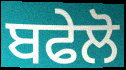
ਬਫੇਲੋ